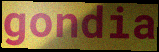
gondia